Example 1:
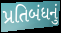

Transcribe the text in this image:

પ્રતિબંધનું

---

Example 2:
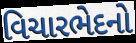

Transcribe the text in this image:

વિચારભેદનો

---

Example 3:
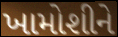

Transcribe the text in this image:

ખામોશીને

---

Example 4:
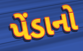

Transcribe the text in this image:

પેંડાનો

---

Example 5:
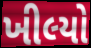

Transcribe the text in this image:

ખીલ્યો